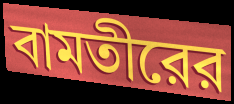
বামতীরের